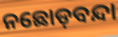
ନଛୋଡ଼ବନ୍ଦା